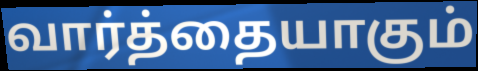
வார்த்தையாகும்